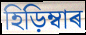
হিড়িম্বাৰ